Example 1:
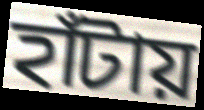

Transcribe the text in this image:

হাঁটায়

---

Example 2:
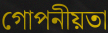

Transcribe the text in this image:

গোপনীয়তা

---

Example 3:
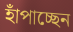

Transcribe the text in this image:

হাঁপাচ্ছেন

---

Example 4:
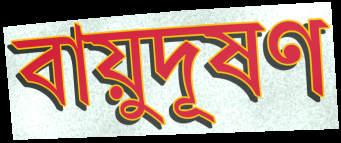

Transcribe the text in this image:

বায়ুদূষণ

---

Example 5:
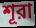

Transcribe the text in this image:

শূরা